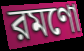
রমণো